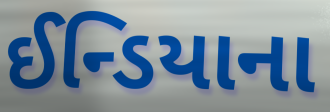
ઈન્ડિયાના